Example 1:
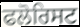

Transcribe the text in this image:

ਫਲੋਰਿਸਟ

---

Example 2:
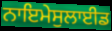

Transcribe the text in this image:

ਨਾਇਮੇਸੁਲਾਈਡ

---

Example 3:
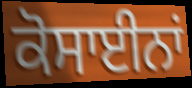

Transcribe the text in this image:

ਕੋਸਾਈਨਾਂ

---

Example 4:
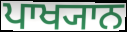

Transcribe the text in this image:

ਪਾਖ੍ਯਾਨ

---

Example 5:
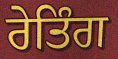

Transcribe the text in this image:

ਰੇਤਿੰਗ